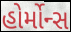
હોર્મોન્સ